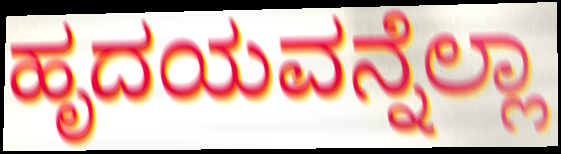
ಹೃದಯವನ್ನೆಲ್ಲಾ